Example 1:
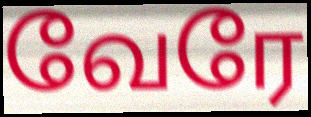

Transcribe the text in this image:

வேரே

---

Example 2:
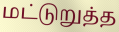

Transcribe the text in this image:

மட்டுறுத்த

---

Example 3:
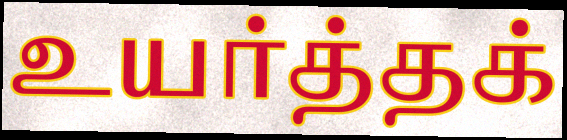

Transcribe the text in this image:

உயர்த்தக்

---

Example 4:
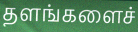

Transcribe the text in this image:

தளங்களைச்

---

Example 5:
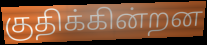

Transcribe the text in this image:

குதிக்கின்றன